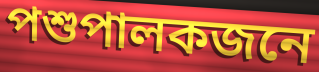
পশুপালকজনে